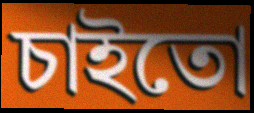
চাইতো